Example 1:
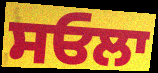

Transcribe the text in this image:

ਸਓਲਾ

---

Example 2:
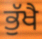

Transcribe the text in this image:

ਭੁੱਖੈ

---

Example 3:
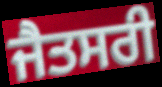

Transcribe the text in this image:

ਜੈਤਸਰੀ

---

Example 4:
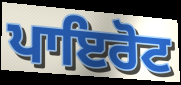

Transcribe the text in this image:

ਪਾਇਰੋਟ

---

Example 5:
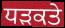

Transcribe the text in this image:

ਧੜਕਤੇ